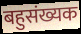
बहुसंख्यक